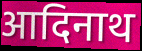
आदिनाथ